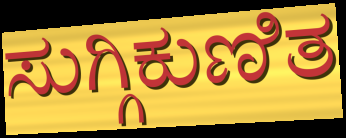
ಸುಗ್ಗಿಕುಣಿತ